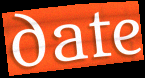
date